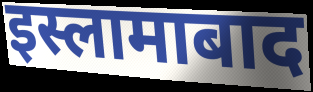
इस्लामाबाद